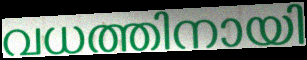
വധത്തിനായി